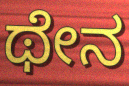
ಥೇನ